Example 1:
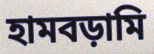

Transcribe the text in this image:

হামবড়ামি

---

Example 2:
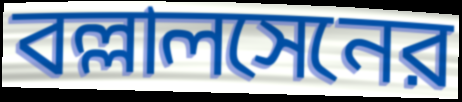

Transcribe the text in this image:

বল্লালসেনের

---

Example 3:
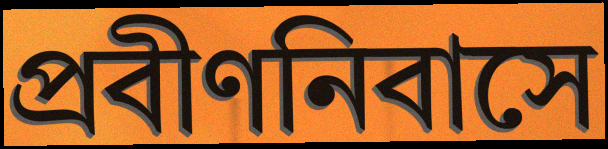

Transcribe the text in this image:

প্রবীণনিবাসে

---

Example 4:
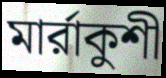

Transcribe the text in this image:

মার্রাকুশী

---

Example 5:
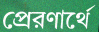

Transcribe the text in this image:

প্রেরণার্থে